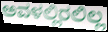
ಅವಳಲ್ಲಿರಲಿಲ್ಲ